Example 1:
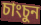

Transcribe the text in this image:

চাংচুন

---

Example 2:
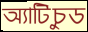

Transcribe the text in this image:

অ্যাটিচুড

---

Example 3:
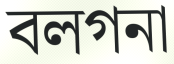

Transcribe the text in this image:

বলগনা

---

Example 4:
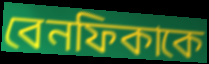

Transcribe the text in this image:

বেনফিকাকে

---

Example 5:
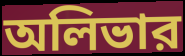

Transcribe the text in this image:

অলিভার